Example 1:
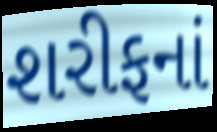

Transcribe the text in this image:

શરીફનાં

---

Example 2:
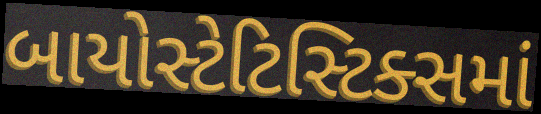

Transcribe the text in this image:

બાયોસ્ટેટિસ્ટિક્સમાં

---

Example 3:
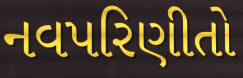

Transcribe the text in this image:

નવપરિણીતો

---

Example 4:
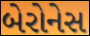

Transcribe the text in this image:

બેરોનેસ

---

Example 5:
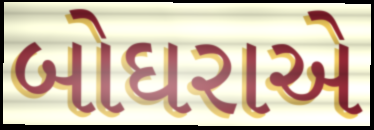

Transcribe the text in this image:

બોઘરાએ